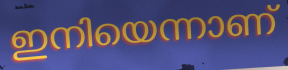
ഇനിയെന്നാണ്